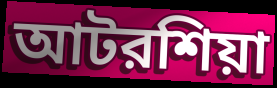
আটরশিয়া